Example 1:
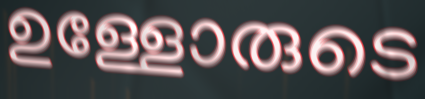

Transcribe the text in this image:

ഉള്ളോരുടെ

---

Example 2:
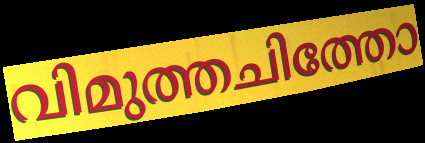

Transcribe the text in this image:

വിമുത്തചിത്തോ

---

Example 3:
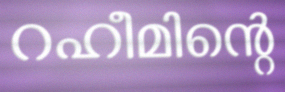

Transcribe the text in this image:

റഹീമിന്റെ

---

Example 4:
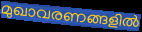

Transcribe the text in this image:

മുഖാവരണങ്ങളിൽ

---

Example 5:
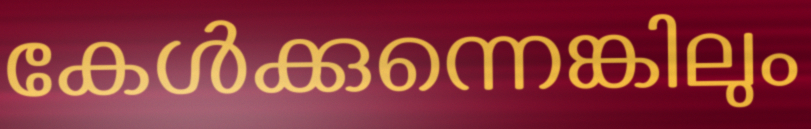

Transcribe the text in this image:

കേൾക്കുന്നെങ്കിലും